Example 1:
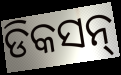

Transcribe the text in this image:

ଡିକସନ୍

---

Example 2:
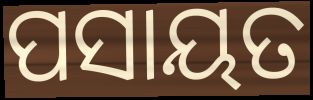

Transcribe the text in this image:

ପସାୟତ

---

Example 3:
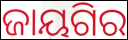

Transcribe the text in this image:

ଜାୟଗିର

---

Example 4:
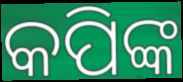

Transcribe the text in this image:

କପିଙ୍କ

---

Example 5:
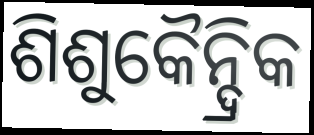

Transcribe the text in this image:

ଶିଶୁକୈନ୍ଦ୍ରିକ